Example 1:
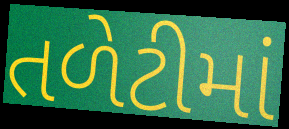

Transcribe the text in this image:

તળેટીમાં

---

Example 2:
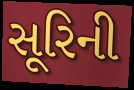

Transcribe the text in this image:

સૂરિની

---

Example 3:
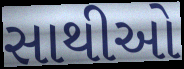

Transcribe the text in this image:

સાથીઓ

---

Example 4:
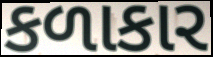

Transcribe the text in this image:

કળાકાર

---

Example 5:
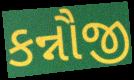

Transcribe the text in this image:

કન્નૌજી